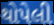
થોપેલી